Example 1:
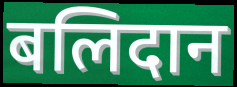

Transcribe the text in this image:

बलिदान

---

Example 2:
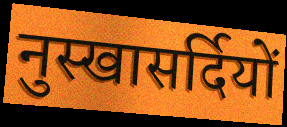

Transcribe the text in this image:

नुस्खासर्दियों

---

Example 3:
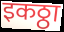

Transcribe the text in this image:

इकठ्ठा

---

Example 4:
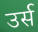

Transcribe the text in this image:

उर्स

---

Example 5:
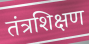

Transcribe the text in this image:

तंत्रशिक्षण